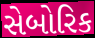
સેબોરિક